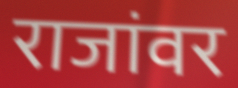
राजांवर